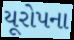
યૂરોપના